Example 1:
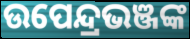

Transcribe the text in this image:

ଉପେନ୍ଦ୍ରଭଞ୍ଜଙ୍କ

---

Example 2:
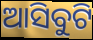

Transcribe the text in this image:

ଆସିବୁଟି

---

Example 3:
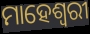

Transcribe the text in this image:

ମାହେଶ୍ଵରୀ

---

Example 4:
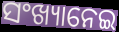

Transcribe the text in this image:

ସଂଖ୍ୟାନେଇ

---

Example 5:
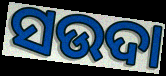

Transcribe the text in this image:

ସଉଦା